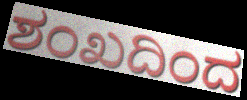
ಶಂಖದಿಂದ